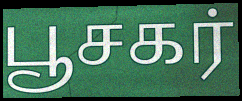
பூசகர்